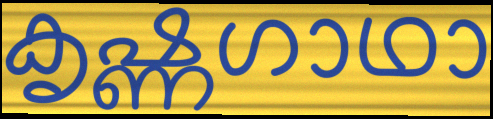
കൃഷ്ണഗാഥാ